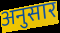
अनुसार